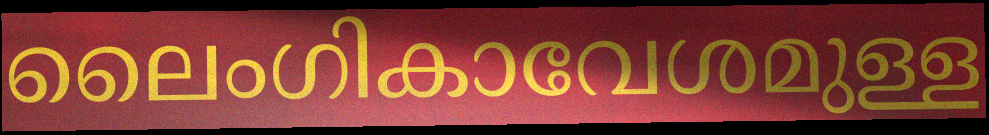
ലൈംഗികാവേശമുള്ള